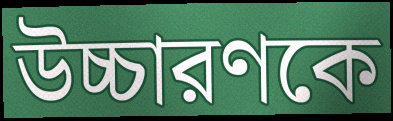
উচ্চারণকে